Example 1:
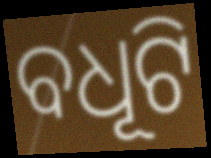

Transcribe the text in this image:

ବଧୂଟି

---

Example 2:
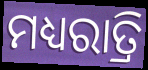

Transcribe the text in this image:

ମଧ୍ଯରାତ୍ରି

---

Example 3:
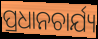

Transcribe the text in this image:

ପ୍ରଧାନଚାର୍ଯ୍ୟ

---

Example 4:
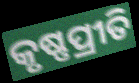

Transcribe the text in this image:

କୃଷ୍ଣପ୍ରୀତି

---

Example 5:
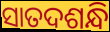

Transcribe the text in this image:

ସାତଦଶନ୍ଧି